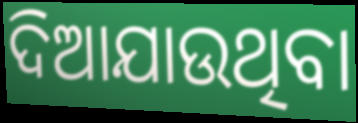
ଦିଆଯାଉଥିବା